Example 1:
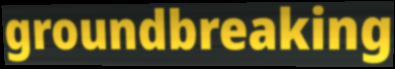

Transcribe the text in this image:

groundbreaking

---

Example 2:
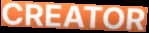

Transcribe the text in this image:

CREATOR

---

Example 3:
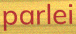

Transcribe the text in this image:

parlei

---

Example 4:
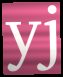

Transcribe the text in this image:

yj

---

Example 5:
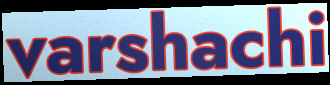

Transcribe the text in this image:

varshachi